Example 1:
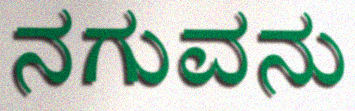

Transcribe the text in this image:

ನಗುವನು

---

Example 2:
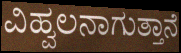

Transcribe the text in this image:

ವಿಹ್ವಲನಾಗುತ್ತಾನೆ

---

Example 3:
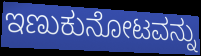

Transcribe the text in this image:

ಇಣುಕುನೋಟವನ್ನು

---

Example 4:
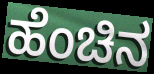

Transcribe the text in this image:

ಹೆಂಚಿನ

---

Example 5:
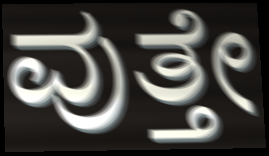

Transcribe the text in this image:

ವುತ್ತೇ